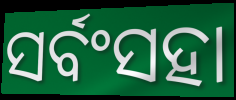
ସର୍ବଂସହା